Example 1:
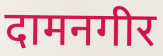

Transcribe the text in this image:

दामनगीर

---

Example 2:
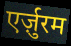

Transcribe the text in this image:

एर्ज़ुरम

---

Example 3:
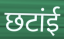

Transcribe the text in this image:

छटांई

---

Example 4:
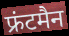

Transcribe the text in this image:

फ्रंटमैन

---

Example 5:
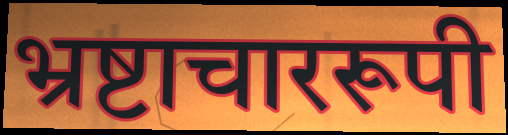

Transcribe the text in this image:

भ्रष्टाचाररूपी